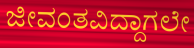
ಜೀವಂತವಿದ್ದಾಗಲೇ